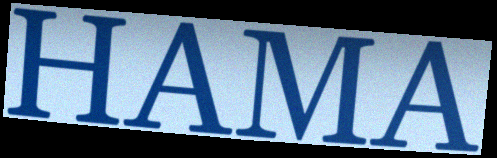
HAMA